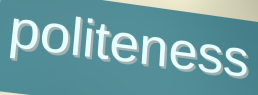
politeness